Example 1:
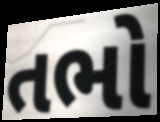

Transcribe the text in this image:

તભો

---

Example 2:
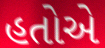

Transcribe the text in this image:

હતોએ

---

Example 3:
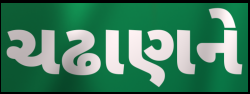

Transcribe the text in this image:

ચઢાણને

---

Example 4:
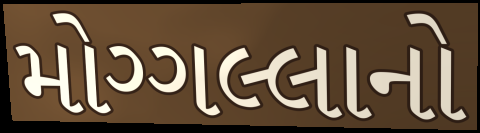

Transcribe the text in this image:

મોગ્ગલ્લાનો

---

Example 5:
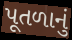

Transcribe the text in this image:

પૂતળાનું